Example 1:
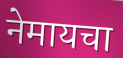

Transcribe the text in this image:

नेमायचा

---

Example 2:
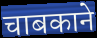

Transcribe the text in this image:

चाबकाने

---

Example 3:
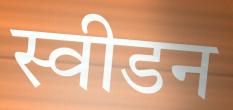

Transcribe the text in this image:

स्वीडन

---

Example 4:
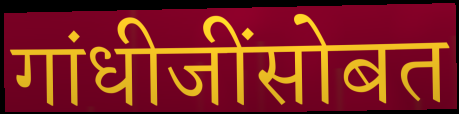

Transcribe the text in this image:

गांधीजींसोबत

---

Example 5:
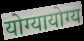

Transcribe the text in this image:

योग्यायोग्य